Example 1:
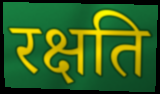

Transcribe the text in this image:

रक्षति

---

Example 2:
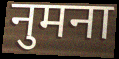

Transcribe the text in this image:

नुमना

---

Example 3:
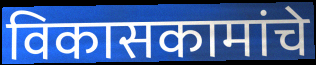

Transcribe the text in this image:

विकासकामांचे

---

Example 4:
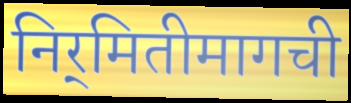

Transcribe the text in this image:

निर्मितीमागची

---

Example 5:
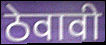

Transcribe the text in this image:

ठेवावी